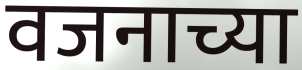
वजनाच्या